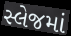
સ્લેજમાં